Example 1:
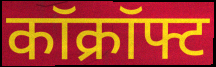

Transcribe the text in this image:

कॉक्रॉफ्ट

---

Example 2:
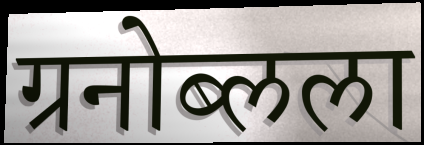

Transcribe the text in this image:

ग्रनोब्लला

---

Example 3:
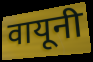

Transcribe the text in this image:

वायूनी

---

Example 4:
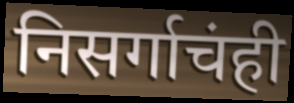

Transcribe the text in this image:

निसर्गाचंही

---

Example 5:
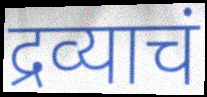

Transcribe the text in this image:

द्रव्याचं